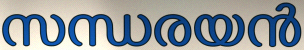
സന്ധരയൻ